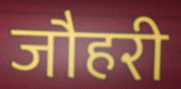
जौहरी